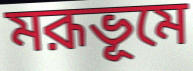
মরূভূমে